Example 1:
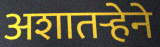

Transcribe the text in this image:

अशातऱ्हेने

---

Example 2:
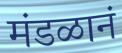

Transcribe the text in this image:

मंडळानं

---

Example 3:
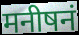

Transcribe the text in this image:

मनीषनं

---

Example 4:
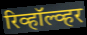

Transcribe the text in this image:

रिव्हॉल्व्हर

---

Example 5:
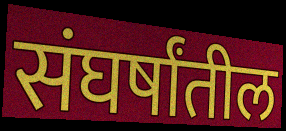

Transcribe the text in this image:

संघर्षांतील